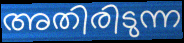
അതിരിടുന്ന